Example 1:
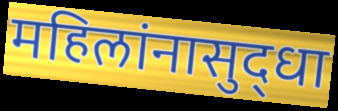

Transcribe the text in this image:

महिलांनासुद्धा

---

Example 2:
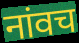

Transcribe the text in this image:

नांवच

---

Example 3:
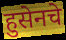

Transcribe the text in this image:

हुसेनचे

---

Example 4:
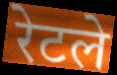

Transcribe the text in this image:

रेटले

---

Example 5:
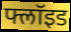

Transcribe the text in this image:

फ्लॉइड